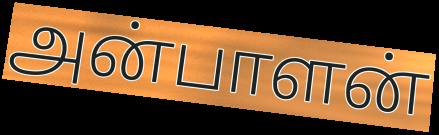
அன்பாளன்